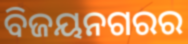
ବିଜୟନଗରର